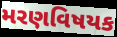
મરણવિષયક